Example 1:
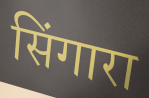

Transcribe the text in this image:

सिंगारा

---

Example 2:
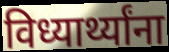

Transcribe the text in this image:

विध्यार्थ्यांना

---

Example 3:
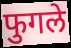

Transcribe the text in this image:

फुगले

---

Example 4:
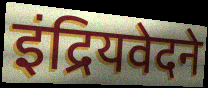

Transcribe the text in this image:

इंद्रियवेदने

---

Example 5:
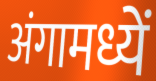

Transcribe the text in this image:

अंगामध्यें